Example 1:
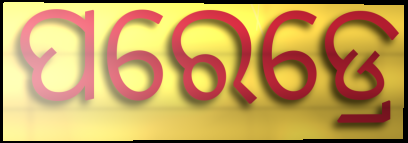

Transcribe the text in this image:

ପରେଡ୍ରେ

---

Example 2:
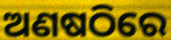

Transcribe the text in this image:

ଅଣଷଠିରେ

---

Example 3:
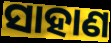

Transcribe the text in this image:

ସାହାଣ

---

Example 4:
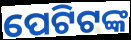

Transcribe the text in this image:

ପେଟିଟଙ୍କ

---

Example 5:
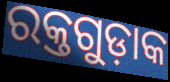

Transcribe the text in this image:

ରକ୍ତଗୁଡ଼ାକ